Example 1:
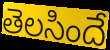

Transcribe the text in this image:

తెలసిందే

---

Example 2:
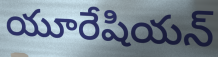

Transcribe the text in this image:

యూరేషియన్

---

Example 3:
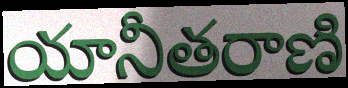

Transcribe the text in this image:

యానీతరాణి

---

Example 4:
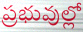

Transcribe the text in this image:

ప్రభువుల్లో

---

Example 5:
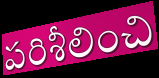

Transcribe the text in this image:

పరిశీలించి